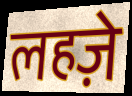
लहज़े